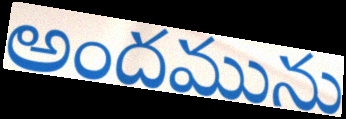
అందమును